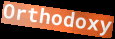
Orthodoxy